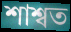
শাশ্বত